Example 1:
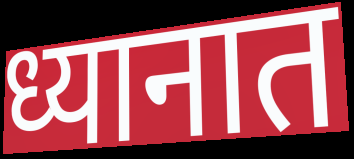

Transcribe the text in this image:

ध्यानात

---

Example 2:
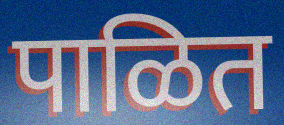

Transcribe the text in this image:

पाळित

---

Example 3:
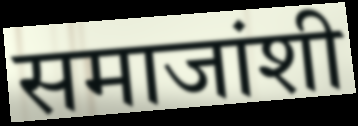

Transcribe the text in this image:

समाजांशी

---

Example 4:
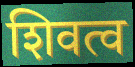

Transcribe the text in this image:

शिवत्व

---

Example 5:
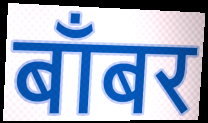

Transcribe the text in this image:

बाँबर